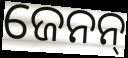
ଜେନନ୍